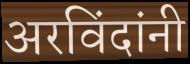
अरविंदांनी